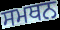
ਸਮਥਨ